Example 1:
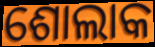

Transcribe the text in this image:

ଶୋଲାକ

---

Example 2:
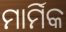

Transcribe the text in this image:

ମାର୍ମିକ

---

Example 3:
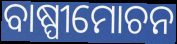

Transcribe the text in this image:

ବାଷ୍ପୀମୋଚନ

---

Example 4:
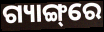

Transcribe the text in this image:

ଗ୍ୟାଙ୍ଗ୍‌ରେ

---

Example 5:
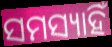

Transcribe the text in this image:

ସମସ୍ୟାହିଁ